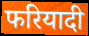
फरियादी